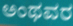
ಅಂಥವರ